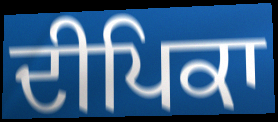
ਦੀਪਿਕਾ